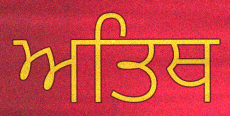
ਅਤਿਥ